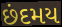
છંદમય